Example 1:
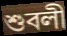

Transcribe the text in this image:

শুবলী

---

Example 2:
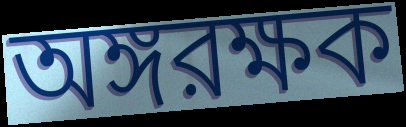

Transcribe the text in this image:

অঙ্গরক্ষক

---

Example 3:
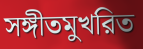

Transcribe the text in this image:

সঙ্গীতমুখরিত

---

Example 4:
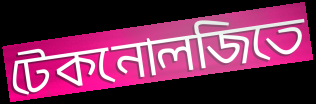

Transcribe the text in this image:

টেকনোলজিতে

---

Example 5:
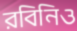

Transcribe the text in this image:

রবিনিও